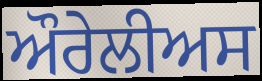
ਔਰੇਲੀਅਸ